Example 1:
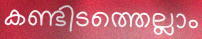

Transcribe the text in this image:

കണ്ടിടത്തെല്ലാം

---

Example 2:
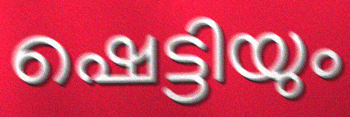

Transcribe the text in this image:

ഷെട്ടിയും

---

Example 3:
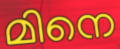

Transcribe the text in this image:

മിനെ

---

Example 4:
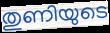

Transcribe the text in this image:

തുണിയുടെ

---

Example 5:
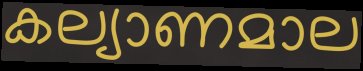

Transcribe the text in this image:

കല്യാണമാല